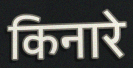
किनारे